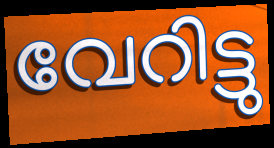
വേറിട്ടു